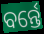
ବର୍ନ୍ତେ